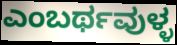
ಎಂಬರ್ಥವುಳ್ಳ